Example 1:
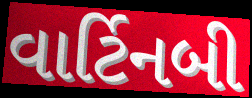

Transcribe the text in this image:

વાર્ટિનબી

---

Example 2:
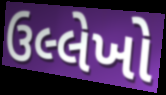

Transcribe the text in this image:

ઉલ્લેખો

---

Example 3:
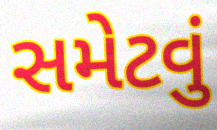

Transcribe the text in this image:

સમેટવું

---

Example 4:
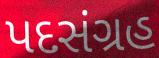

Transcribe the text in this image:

પદસંગ્રહ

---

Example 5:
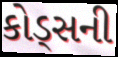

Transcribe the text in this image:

કોડ્સની